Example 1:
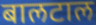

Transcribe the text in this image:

बालटाल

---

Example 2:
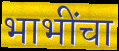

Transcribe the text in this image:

भाभींचा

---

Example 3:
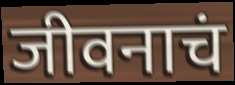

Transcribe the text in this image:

जीवनाचं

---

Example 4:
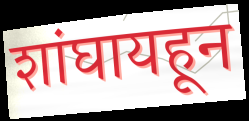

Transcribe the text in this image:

शांघायहून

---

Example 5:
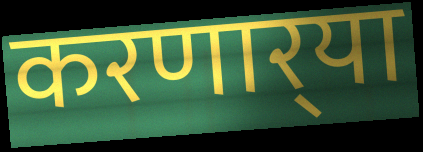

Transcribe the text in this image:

करणार्‍या